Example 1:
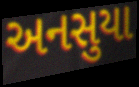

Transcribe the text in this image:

અનસુયા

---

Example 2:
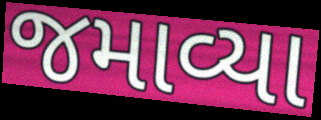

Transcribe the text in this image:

જમાવ્યા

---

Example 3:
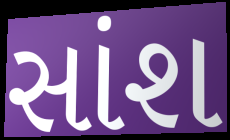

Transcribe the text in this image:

સાંશ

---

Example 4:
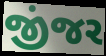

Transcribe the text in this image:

જીંજર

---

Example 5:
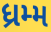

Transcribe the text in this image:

ધ્રમ્મ